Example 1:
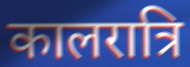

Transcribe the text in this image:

कालरात्रि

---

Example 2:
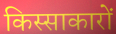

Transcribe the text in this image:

किस्साकारों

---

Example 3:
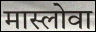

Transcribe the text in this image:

मास्लोवा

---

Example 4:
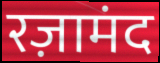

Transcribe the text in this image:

रज़ामंद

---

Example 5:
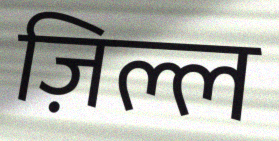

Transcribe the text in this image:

ज़िल्ल